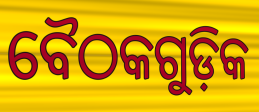
ବୈଠକଗୁଡ଼ିକ